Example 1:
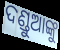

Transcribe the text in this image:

ଦଣ୍ଡୁଆଙ୍କୁ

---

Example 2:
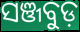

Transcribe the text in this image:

ସଞ୍ଜବୁଡ଼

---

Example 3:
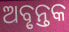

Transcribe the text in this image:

ଅବୃନ୍ତକ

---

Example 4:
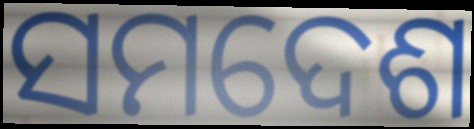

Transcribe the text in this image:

ସମଦେଶ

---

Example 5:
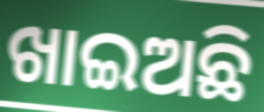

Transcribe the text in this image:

ଖାଇଅଛି